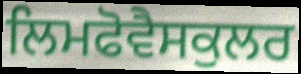
ਲਿਮਫੋਵੈਸਕੁਲਰ